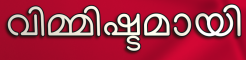
വിമ്മിഷ്ടമായി